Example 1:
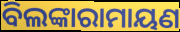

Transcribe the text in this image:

ବିଲଙ୍କାରାମାୟଣ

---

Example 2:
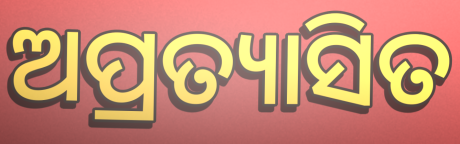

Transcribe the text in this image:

ଅପ୍ରତ୍ୟାସିତ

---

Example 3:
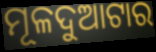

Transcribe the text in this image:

ମୂଳଦୁଆଟାର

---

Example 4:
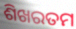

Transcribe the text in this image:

ଶିଖରତମ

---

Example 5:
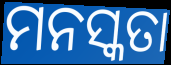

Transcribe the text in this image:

ମନସ୍କତା